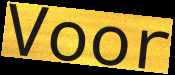
Voor